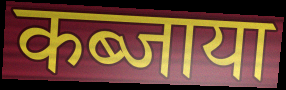
कब्जाया